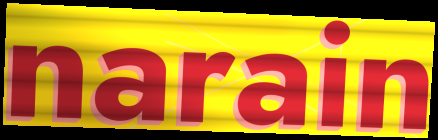
narain